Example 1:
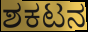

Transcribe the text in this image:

ಶಕಟನ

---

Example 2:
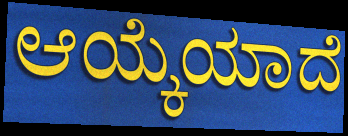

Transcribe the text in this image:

ಆಯ್ಕೆಯಾದೆ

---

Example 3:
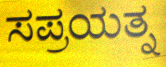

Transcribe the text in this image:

ಸಪ್ರಯತ್ನ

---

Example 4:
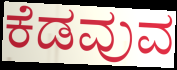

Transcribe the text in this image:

ಕೆಡವುವ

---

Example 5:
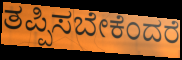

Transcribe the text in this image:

ತಪ್ಪಿಸಬೇಕೆಂದರೆ